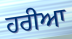
ਹਰੀਆ